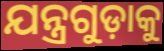
ଯନ୍ତ୍ରଗୁଡ଼ାକୁ